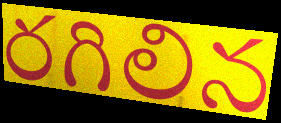
రగిలిన